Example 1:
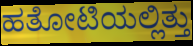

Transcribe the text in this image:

ಹತೋಟಿಯಲ್ಲಿತ್ತು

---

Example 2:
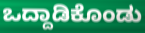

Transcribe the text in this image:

ಒದ್ದಾಡಿಕೊಂಡು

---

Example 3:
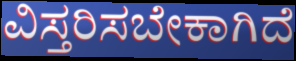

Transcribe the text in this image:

ವಿಸ್ತರಿಸಬೇಕಾಗಿದೆ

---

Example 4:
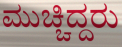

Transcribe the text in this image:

ಮುಚ್ಚಿದ್ದರು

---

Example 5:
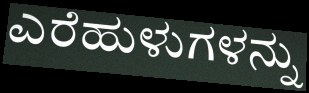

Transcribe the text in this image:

ಎರೆಹುಳುಗಳನ್ನು